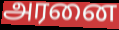
அரனை